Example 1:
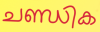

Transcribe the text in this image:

ചണ്ഡിക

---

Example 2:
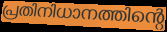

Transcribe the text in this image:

പ്രതിനിധാനത്തിന്റെ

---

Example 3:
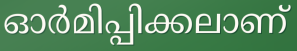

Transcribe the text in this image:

ഓർമിപ്പിക്കലാണ്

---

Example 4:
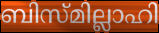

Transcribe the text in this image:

ബിസ്മില്ലാഹി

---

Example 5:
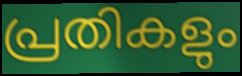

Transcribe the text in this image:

പ്രതികളും